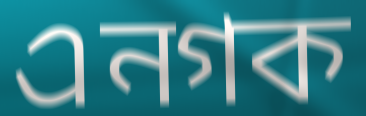
এনগক